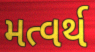
મત્વર્થ